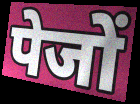
पेजों